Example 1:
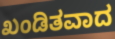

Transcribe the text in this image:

ಖಂಡಿತವಾದ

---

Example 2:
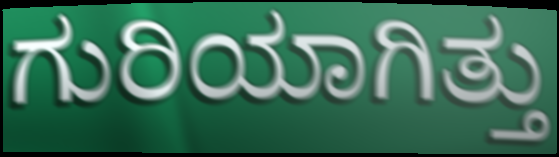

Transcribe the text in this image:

ಗುರಿಯಾಗಿತ್ತು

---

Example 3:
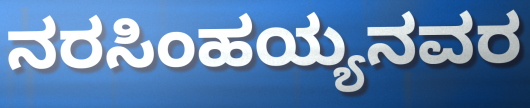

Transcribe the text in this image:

ನರಸಿಂಹಯ್ಯನವರ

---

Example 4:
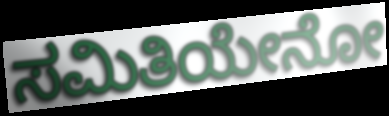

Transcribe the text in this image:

ಸಮಿತಿಯೇನೋ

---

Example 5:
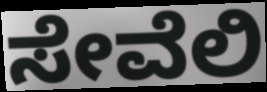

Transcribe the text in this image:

ಸೇವೆಲಿ